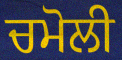
ਚਮੋਲੀ